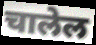
चालेल